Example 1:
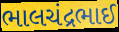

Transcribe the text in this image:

ભાલચંદ્રભાઈ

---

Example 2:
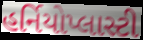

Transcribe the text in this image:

હર્નિયોપ્લાસ્ટી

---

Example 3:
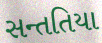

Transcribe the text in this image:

સન્તતિયા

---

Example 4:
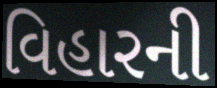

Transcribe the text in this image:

વિહારની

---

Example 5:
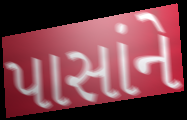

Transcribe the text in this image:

પાસાંને